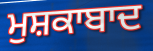
ਮੁਸ਼ਕਾਬਾਦ